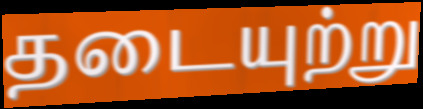
தடையுற்று